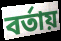
বর্তায়